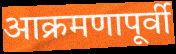
आक्रमणापूर्वी